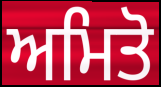
ਅਮਿਤੋ